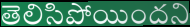
తెలిసిపోయిందని